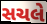
સચલે